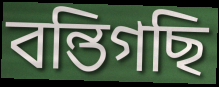
বন্তিগছি